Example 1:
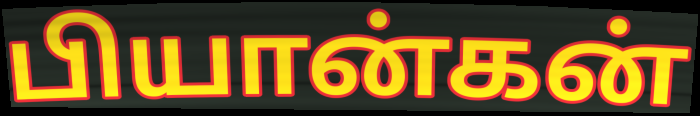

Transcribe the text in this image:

பியான்கன்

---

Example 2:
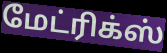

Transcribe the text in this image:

மேட்ரிக்ஸ்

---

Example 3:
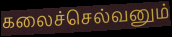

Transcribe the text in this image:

கலைச்செல்வனும்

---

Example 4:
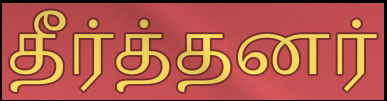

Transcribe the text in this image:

தீர்த்தனர்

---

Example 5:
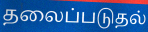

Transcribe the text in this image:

தலைப்படுதல்